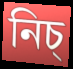
নিচ্